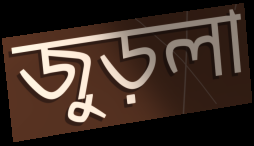
জুড়লা